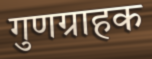
गुणग्राहक